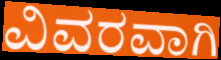
ವಿವರವಾಗಿ